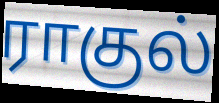
ராகுல்